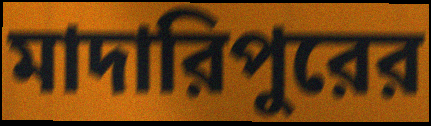
মাদারিপুরের